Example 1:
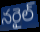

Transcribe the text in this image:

నరైల్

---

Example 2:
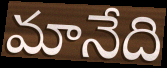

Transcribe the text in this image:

మానేది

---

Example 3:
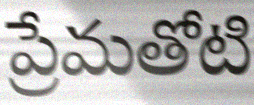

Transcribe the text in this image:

ప్రేమతోటి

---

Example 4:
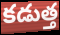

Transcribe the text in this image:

కడుత్త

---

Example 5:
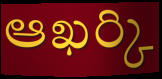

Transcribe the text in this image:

ఆఖర్కి